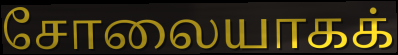
சோலையாகக்